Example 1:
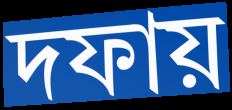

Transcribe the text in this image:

দফায়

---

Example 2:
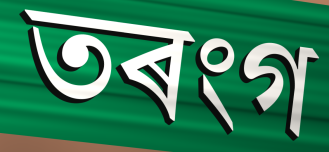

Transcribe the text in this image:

তৰংগ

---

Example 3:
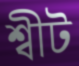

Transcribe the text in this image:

শ্বীট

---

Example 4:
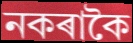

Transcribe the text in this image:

নকৰাকৈ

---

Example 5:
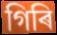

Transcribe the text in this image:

গিৰি